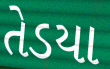
તેડયા